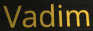
Vadim